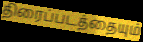
திரைப்படத்தையும்